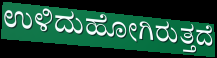
ಉಳಿದುಹೋಗಿರುತ್ತದೆ